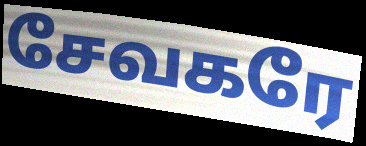
சேவகரே